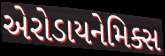
એરોડાયનેમિક્સ